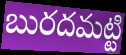
బురదమట్టి